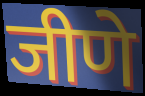
जीणे